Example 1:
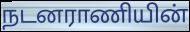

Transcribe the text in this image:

நடனராணியின்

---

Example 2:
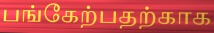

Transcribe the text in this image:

பங்கேற்பதற்காக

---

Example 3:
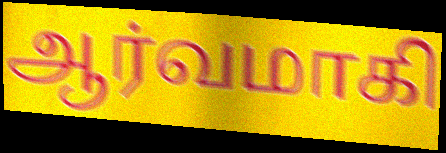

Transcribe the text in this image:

ஆர்வமாகி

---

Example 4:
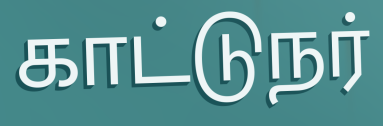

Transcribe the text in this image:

காட்டுநர்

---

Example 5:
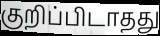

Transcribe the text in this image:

குறிப்பிடாதது